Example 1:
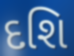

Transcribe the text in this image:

દશિ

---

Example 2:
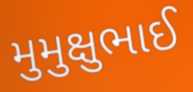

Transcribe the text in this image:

મુમુક્ષુભાઈ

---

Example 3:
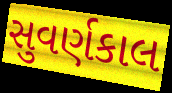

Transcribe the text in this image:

સુવર્ણકાલ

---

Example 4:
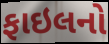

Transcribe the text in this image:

ફાઇલનો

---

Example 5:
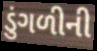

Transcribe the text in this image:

ડુંગળીની